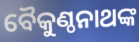
ବୈକୁଣ୍ଠନାଥଙ୍କ